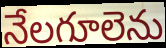
నేలగూలెను